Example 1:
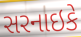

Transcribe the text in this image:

સરનાઇકે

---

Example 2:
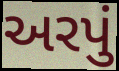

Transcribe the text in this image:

અરપું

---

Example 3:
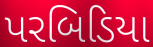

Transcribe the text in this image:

પરબિડિયા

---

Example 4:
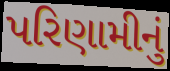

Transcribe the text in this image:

પરિણામીનું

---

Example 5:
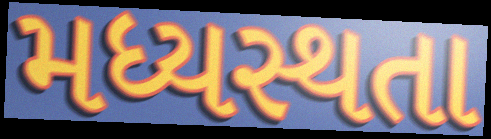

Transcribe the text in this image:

મધ્યસ્થતા